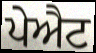
ਪੇਐਟ